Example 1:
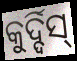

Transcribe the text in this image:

କୁର୍ଦ୍ଦିସ୍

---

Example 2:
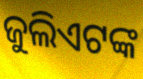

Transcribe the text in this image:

ଜୁଲିଏଟଙ୍କ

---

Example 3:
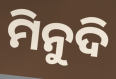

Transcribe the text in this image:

ମିନୁଦି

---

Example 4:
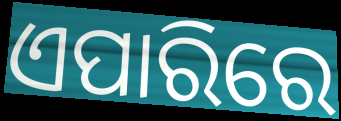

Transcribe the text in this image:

ଏପାରିରେ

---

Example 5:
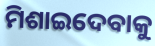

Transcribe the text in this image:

ମିଶାଇଦେବାକୁ